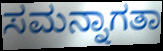
ಸಮನ್ನಾಗತಾ